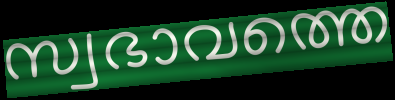
സ്വഭാവത്തെ